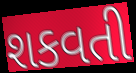
શકવતી